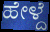
ಹೇಳ್ದೆ